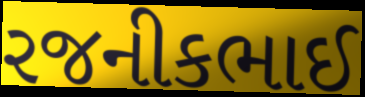
રજનીકભાઈ